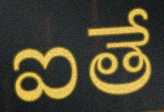
ఐతే